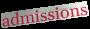
admissions